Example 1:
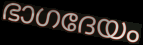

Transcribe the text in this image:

ഭാഗദേയം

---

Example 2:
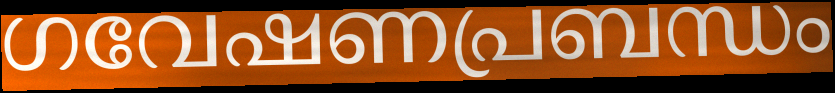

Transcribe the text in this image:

ഗവേഷണപ്രബന്ധം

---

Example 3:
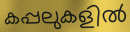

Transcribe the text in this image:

കപ്പലുകളിൽ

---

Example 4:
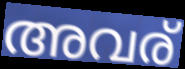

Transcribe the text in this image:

അവര്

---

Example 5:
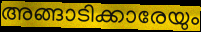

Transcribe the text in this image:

അങ്ങാടിക്കാരേയും